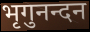
भृगुनन्दन